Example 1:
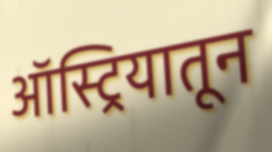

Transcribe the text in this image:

ऑस्ट्रियातून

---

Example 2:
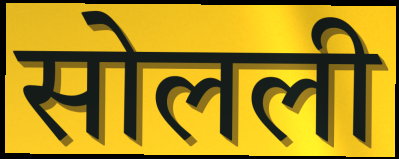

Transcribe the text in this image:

सोलली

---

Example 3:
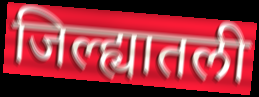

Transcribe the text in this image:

जिल्ह्यातली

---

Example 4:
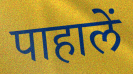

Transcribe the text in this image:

पाहालें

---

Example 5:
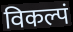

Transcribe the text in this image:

विकल्पं